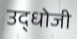
उद्धोजी